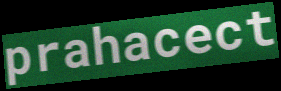
prahacect